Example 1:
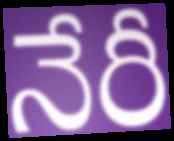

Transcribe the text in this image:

నేరీ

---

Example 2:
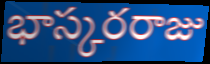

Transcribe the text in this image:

భాస్కరరాజు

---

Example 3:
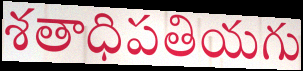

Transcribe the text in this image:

శతాధిపతియగు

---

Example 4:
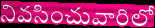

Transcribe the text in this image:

నివసించువారిలో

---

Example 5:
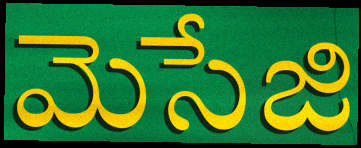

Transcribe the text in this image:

మెసేజి